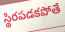
స్థిరపడకపోతే